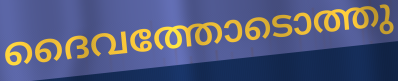
ദൈവത്തോടൊത്തു